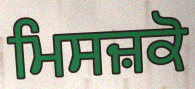
ਮਿਸਜ਼ਕੋ